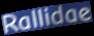
Rallidae